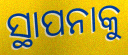
ସ୍ଥାପନାକୁ